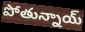
పోతున్నాయ్